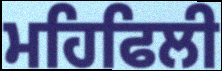
ਮਹਿਫਿਲੀ